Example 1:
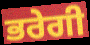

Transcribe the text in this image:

ਭਰੇਗੀ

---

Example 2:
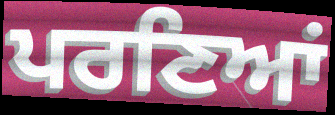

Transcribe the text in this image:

ਪਰਣਿਆਂ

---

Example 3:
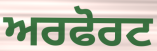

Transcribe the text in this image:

ਅਰਫੋਰਟ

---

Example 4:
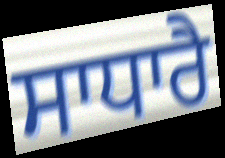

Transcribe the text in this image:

ਸਾਧਾਰੈ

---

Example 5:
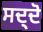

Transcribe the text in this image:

ਸਦ੍ਦੋ